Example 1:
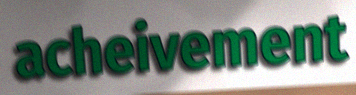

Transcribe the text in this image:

acheivement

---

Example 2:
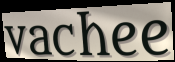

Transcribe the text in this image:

vachee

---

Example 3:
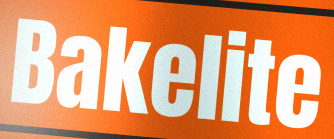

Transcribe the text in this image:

Bakelite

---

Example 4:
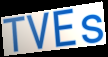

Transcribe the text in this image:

TVEs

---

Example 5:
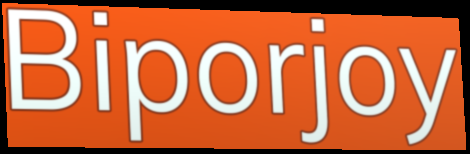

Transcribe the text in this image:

Biporjoy